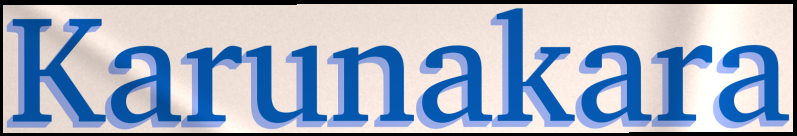
Karunakara